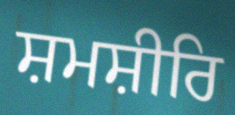
ਸ਼ਮਸ਼ੀਰਿ